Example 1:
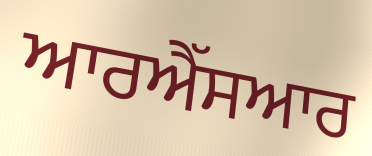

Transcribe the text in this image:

ਆਰਐੱਸਆਰ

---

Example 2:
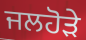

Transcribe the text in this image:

ਜਲਹੋੜੇ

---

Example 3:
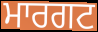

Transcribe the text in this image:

ਮਾਰਗਟ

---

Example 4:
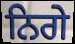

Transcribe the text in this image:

ਨਿਗੇ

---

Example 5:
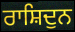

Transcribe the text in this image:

ਰਾਸ਼ਿਦੁਨ